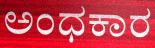
ಅಂಧಕಾರ